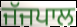
ਜੱਜਪਾਲ